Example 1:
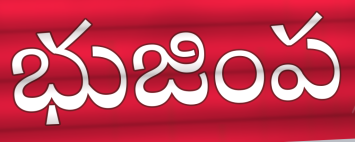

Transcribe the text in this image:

భుజింప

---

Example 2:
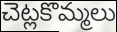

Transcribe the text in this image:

చెట్లకొమ్మలు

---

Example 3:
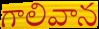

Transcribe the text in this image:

గాలివాన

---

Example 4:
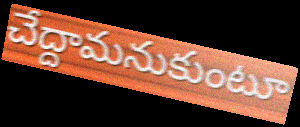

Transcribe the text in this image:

చేద్దామనుకుంటూ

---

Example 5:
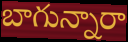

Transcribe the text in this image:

బాగున్నారా